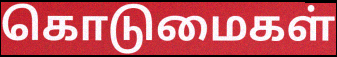
கொடுமைகள்